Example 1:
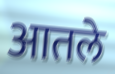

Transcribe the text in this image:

आतले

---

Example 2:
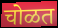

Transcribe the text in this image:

चोळत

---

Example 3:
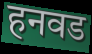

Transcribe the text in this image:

हनवड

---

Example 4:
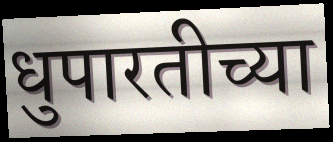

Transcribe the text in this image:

धुपारतीच्या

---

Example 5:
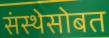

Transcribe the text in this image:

संस्थेसोबत